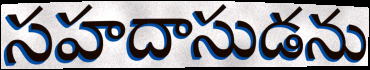
సహదాసుడను